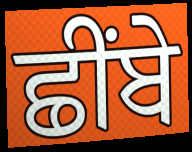
ਛੀਂਬੇ